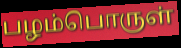
பழம்பொருள்